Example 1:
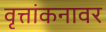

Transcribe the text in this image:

वृत्तांकनावर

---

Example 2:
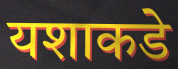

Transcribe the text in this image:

यशाकडे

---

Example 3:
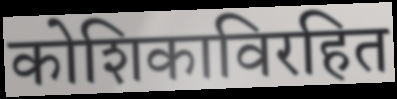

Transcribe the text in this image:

कोशिकाविरहित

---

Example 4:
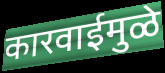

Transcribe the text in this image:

कारवाईमुळे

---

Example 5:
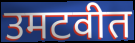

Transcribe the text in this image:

उमटवीत